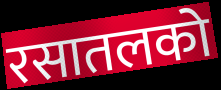
रसातलको